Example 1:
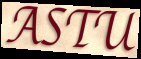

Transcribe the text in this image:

ASTU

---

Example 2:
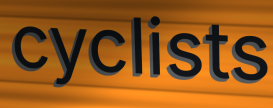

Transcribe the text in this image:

cyclists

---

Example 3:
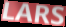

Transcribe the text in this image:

LARS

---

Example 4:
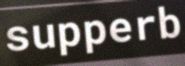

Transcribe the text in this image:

supperb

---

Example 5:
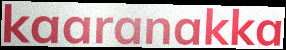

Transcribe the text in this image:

kaaranakka